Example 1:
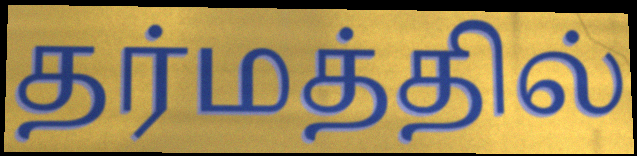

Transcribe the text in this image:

தர்மத்தில்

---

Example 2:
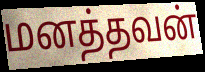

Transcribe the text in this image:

மனத்தவன்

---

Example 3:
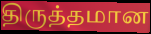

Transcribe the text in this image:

திருத்தமான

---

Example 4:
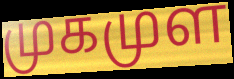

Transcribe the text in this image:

முகமுள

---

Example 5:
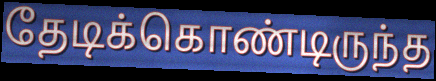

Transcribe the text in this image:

தேடிக்கொண்டிருந்த